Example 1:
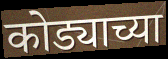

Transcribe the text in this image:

कोड्याच्या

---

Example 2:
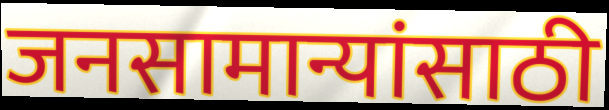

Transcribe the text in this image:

जनसामान्यांसाठी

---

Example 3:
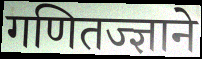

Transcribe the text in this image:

गणितज्ज्ञाने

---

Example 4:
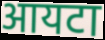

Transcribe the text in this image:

आयटा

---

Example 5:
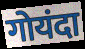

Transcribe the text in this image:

गोयंदा